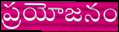
ప్రయోజనం